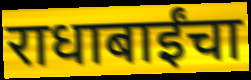
राधाबाईंचा